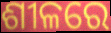
ଶୀଳରେ